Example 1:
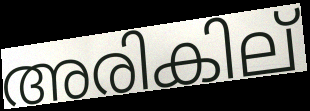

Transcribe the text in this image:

അരികില്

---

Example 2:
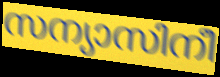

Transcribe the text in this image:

സന്യാസിനീ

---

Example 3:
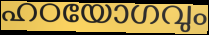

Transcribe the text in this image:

ഹഠയോഗവും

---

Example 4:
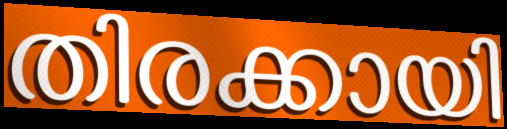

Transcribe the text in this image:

തിരക്കായി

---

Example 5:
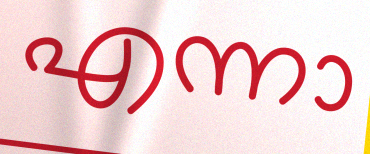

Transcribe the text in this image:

എന്നാ